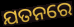
ଯତନରେ